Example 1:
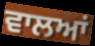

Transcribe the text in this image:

ਵਾਲਆਂ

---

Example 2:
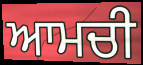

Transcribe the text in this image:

ਆਮਚੀ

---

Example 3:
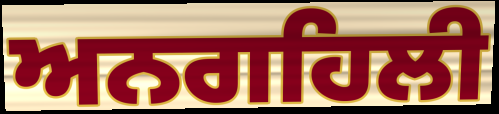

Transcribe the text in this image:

ਅਨਗਹਿਲੀ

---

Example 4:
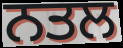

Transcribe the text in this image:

ਨਤਲ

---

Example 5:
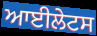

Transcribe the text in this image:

ਆਈਲੇਟਸ